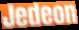
Jedeon